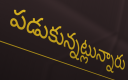
పడుకున్నట్లున్నారు